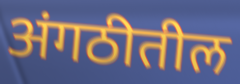
अंगठीतील